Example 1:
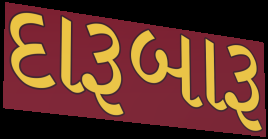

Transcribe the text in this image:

દારૂબારૂ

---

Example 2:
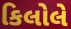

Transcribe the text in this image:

કિલોલે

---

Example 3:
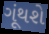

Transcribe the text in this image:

ગૂંથશે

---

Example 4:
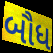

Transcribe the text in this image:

બૌધ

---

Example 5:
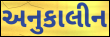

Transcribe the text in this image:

અનુકાલીન